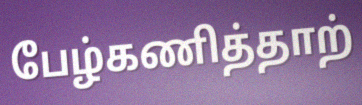
பேழ்கணித்தாற்